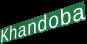
Khandoba